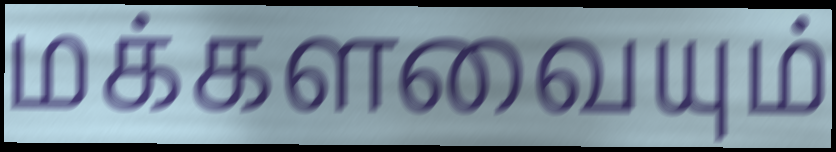
மக்களவையும்